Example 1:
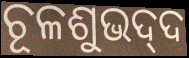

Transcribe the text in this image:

ଚୂଳଶୁଭଦ୍‍ଦ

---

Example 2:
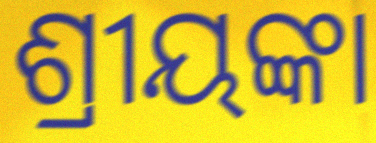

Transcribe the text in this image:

ଶ୍ରୀୟଙ୍କା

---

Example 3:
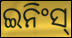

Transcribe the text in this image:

ଇନିଂସ୍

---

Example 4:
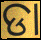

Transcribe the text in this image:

ଡା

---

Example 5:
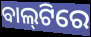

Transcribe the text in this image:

ବାଲ୍‌ଟିରେ